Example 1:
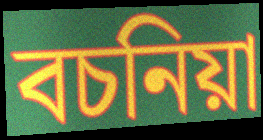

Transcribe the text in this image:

বচনিয়া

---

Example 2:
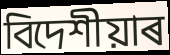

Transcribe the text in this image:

বিদেশীয়াৰ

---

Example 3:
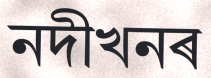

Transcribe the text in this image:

নদীখনৰ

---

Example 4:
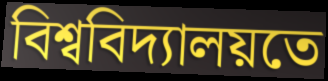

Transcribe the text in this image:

বিশ্ববিদ্যালয়তে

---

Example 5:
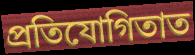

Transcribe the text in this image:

প্ৰতিযোগিতাত